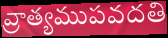
వ్రాత్యముపవదతి